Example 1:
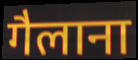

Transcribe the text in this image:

गैलाना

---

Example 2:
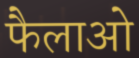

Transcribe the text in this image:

फैलाओ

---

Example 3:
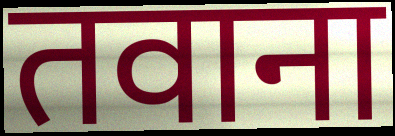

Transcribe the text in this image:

तवाना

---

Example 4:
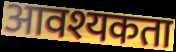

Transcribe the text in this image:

आवश्यकता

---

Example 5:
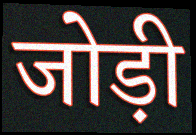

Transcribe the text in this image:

जोड़ी